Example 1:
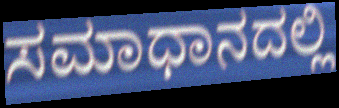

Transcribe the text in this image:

ಸಮಾಧಾನದಲ್ಲಿ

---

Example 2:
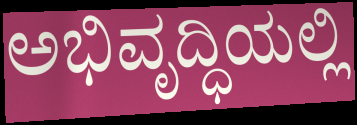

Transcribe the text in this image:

ಅಭಿವೃದ್ಧಿಯಲ್ಲಿ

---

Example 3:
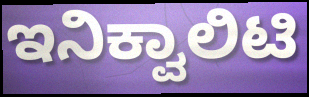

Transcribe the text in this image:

ಇನಿಕ್ವಾಲಿಟಿ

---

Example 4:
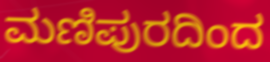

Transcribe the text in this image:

ಮಣಿಪುರದಿಂದ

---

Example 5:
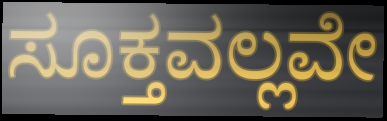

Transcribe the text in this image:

ಸೂಕ್ತವಲ್ಲವೇ